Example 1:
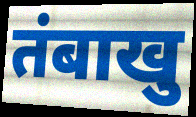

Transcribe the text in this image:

तंबाखु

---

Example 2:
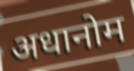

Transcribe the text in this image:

अधानोम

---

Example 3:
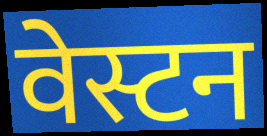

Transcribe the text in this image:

वेस्टन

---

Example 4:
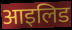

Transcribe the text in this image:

आइलिड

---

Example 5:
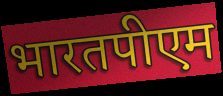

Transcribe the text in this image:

भारतपीएम